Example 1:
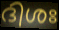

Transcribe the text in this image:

ദിശഃ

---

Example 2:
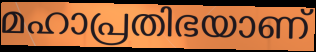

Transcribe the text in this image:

മഹാപ്രതിഭയാണ്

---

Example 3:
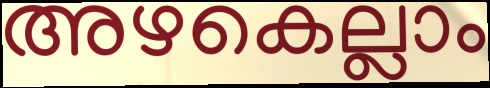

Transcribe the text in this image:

അഴകെല്ലാം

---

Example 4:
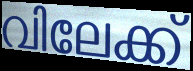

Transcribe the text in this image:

വിലേക്ക്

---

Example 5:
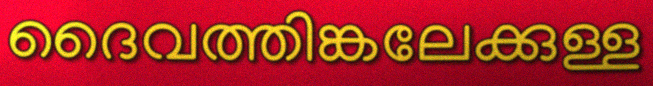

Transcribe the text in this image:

ദൈവത്തിങ്കലേക്കുള്ള